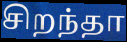
சிறந்தா